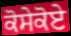
ਕੋਸੇਕੋਏ